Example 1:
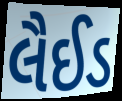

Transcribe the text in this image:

લૈઈડ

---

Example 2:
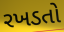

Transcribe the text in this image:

રખડતો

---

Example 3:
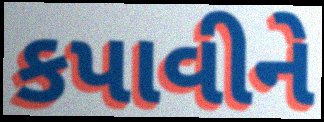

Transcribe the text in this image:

કપાવીને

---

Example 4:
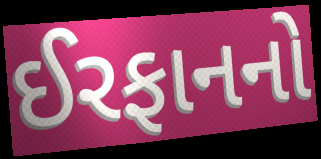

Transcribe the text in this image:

ઈરફાનનો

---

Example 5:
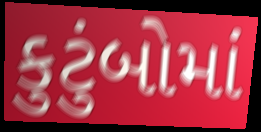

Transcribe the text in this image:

કુટુંબોમાં